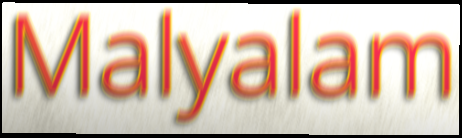
Malyalam